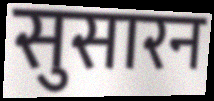
सुसारन